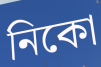
নিকো